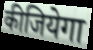
कीजियेगा